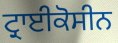
ਟ੍ਰਾਈਕੋਸੀਨ